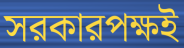
সরকারপক্ষই